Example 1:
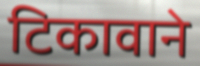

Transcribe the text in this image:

टिकावाने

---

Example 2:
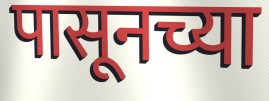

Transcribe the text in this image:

पासूनच्या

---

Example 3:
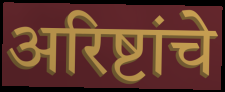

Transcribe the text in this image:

अरिष्टांचे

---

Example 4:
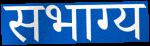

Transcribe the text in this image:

सभाग्य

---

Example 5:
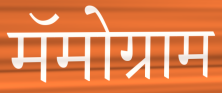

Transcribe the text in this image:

मॅमोग्राम